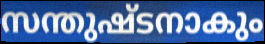
സന്തുഷ്ടനാകും